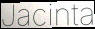
Jacinta